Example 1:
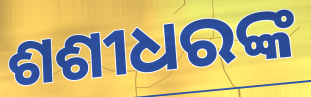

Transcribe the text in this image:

ଶଶୀଧରଙ୍କ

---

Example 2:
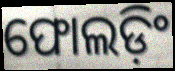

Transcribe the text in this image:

ଫୋଲଡ଼ିଂ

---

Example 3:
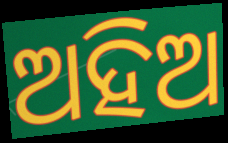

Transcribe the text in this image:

ଅହିଅ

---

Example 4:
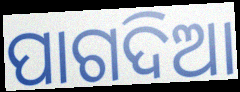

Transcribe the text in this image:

ପାଗଦିଆ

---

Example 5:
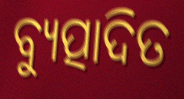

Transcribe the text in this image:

ବ୍ୟୁତ୍ପାଦିତ